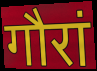
गौरां